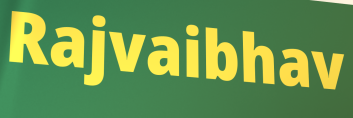
Rajvaibhav